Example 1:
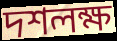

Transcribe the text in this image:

দশলক্ষ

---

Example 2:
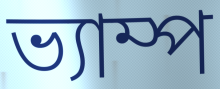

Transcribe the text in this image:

ভ্যাম্প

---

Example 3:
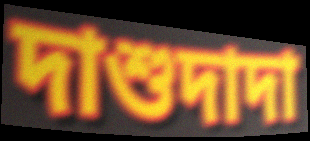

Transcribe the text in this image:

দাশুদাদা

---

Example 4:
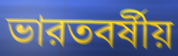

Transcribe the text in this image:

ভারতবর্ষীয়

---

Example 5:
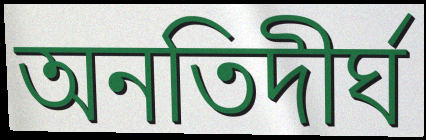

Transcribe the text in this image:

অনতিদীর্ঘ